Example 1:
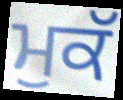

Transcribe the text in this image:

ਮੁਕੱ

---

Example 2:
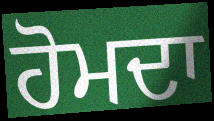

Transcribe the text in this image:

ਹੋਮਦਾ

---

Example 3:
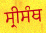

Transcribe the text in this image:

ਸ੍ਰੀਸੰਥ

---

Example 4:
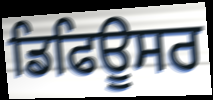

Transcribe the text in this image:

ਡਿਫਿਊਸਰ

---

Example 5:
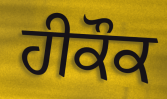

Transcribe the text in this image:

ਹੀਕੌਕ